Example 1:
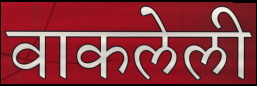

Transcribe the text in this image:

वाकलेली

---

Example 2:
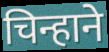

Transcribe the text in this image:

चिन्हाने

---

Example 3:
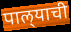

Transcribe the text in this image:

पाल्याची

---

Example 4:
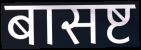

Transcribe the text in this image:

बासष्ट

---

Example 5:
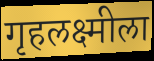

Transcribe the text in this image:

गृहलक्ष्मीला